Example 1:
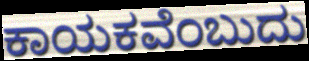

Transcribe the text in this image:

ಕಾಯಕವೆಂಬುದು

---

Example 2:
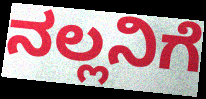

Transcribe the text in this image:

ನಲ್ಲನಿಗೆ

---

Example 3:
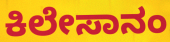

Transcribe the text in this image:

ಕಿಲೇಸಾನಂ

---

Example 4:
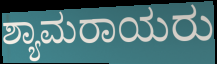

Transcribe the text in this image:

ಶ್ಯಾಮರಾಯರು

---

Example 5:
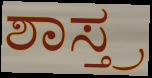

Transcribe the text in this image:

ಶಾಸ್ತ್ರ